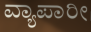
ವ್ಯಾಪಾರೀ